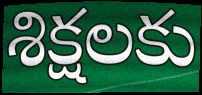
శిక్షలకు